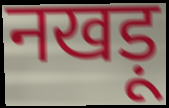
नखड़ू